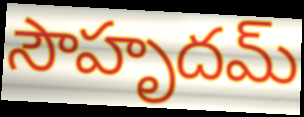
సౌహృదమ్